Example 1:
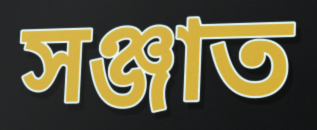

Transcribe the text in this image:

সঞ্জাত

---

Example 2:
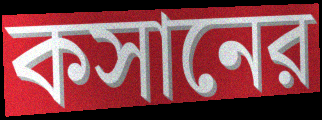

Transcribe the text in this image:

কসানের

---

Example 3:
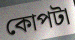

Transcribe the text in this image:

কোপটা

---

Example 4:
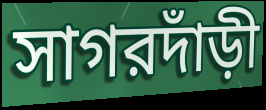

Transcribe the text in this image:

সাগরদাঁড়ী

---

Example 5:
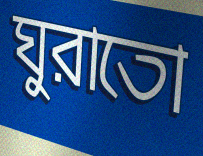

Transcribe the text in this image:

ঘুরাতো